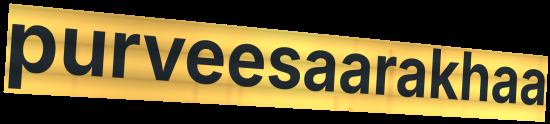
purveesaarakhaa